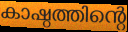
കാഷ്ഠത്തിന്റെ